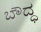
ಬೌದ್ಧ